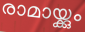
രാമായ്ക്കും